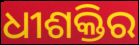
ଧୀଶକ୍ତିର